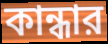
কান্ধার